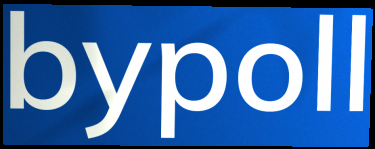
bypoll